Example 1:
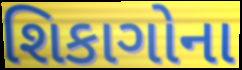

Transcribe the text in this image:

શિકાગોના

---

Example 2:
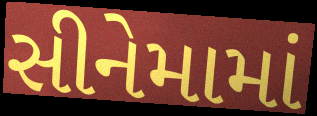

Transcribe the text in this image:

સીનેમામાં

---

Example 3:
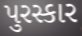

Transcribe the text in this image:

પુરસ્કાર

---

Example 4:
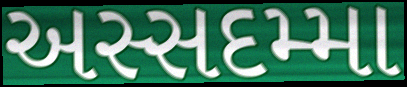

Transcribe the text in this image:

અસ્સદમ્મા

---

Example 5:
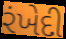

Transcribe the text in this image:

રંખેદી